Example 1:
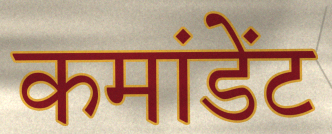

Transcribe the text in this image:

कमांडेंट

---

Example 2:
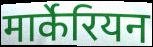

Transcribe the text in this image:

मार्केरियन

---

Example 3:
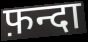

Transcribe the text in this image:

फ़न्दा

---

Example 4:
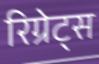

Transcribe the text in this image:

रिग्रेट्स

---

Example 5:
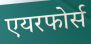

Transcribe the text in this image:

एयरफोर्स